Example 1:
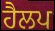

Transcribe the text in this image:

ਹੈਲਪ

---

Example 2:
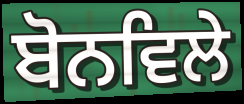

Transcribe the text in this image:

ਬੋਨਵਿਲੇ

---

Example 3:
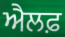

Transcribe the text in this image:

ਐਲਫ਼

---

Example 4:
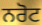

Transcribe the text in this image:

ਨਰੋਟ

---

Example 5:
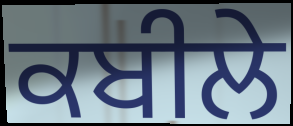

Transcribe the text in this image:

ਕਬੀਲੇ